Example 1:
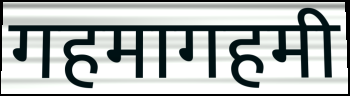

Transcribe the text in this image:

गहमागहमी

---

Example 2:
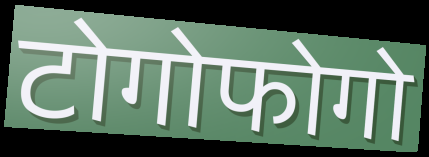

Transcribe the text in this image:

टोगोफोगो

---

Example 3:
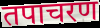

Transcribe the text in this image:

तपाचरण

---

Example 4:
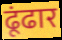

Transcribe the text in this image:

ढूंढार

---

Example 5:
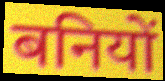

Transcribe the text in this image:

बनियों